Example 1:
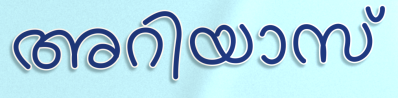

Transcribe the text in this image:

അറിയാസ്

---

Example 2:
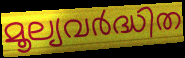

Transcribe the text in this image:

മൂല്യവർദ്ധിത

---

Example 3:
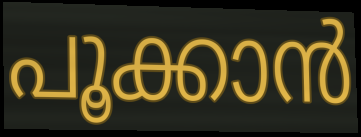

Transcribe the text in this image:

പൂക്കാൻ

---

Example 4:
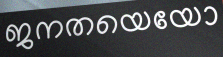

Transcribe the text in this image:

ജനതയെയോ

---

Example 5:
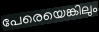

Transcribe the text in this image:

പേരെയെങ്കിലും